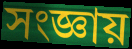
সংজ্ঞায়